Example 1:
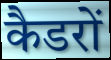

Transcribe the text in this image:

कैडरों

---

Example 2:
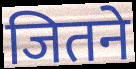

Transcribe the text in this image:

जितने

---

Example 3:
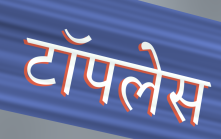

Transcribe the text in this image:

टॉपलेस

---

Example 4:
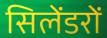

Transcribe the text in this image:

सिलेंडरों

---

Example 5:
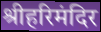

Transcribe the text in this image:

श्रीहरिमंदिर